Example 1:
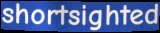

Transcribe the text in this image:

shortsighted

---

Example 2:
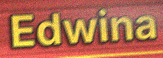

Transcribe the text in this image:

Edwina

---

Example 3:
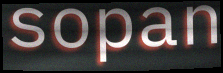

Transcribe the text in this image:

sopan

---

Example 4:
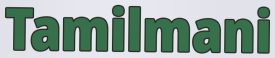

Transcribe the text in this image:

Tamilmani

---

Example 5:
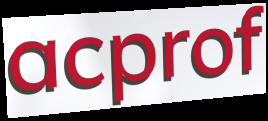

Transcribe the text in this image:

acprof